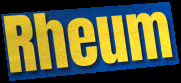
Rheum